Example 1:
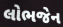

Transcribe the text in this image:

લોભજેન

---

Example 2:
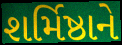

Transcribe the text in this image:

શર્મિષ્ઠાને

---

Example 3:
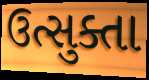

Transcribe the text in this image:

ઉત્સુક્તા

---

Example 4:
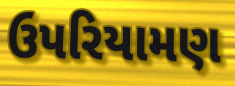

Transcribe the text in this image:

ઉપરિયામણ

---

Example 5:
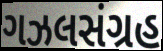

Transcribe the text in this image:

ગઝલસંગ્રહ